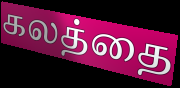
கலத்தை